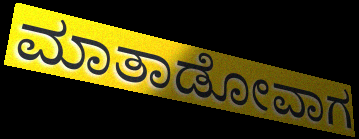
ಮಾತಾಡೋವಾಗ